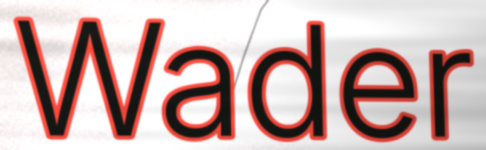
Wader